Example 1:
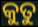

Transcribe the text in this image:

କୁତୁ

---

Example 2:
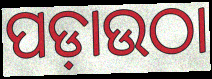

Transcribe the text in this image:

ପଡ଼ାଉଠା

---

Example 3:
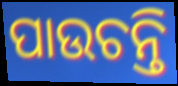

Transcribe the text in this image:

ପାଉଚନ୍ତି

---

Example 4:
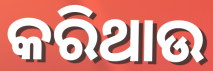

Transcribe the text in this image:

କରିଥାଉ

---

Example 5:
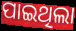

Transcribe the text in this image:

ପାଇଥିଲା